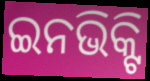
ଇନଭିକ୍ଟି